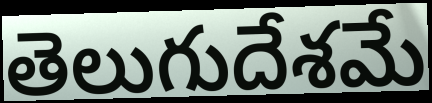
తెలుగుదేశమే